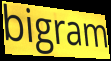
bigram